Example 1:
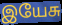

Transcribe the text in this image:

இயேசு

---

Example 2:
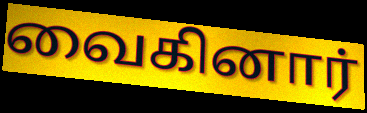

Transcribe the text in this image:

வைகினார்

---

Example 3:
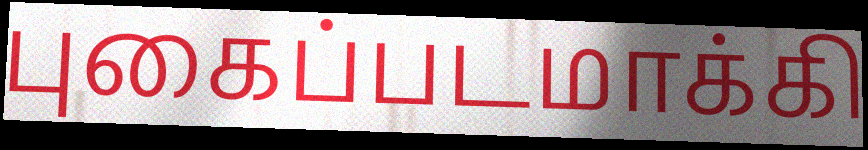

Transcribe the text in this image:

புகைப்படமாக்கி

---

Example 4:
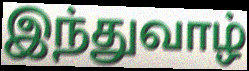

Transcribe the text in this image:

இந்துவாழ்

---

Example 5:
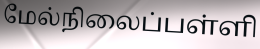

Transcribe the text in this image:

மேல்நிலைப்பள்ளி